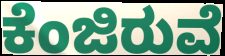
ಕೆಂಜಿರುವೆ